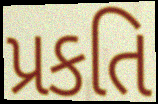
પ્રકતિ